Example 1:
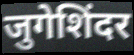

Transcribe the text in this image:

जुगेशिंदर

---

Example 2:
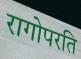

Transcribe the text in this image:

रागोपरति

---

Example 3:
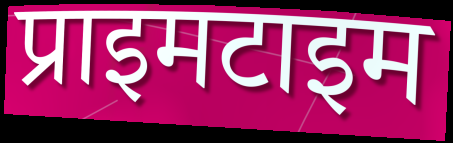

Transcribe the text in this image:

प्राइमटाइम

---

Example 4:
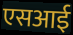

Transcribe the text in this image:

एसआई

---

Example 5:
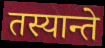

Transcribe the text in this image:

तस्यान्ते